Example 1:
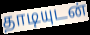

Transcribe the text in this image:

தாடியுடன்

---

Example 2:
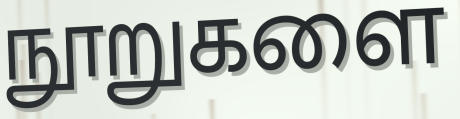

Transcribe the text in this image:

நூறுகளை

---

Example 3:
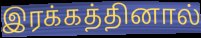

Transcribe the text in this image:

இரக்கத்தினால்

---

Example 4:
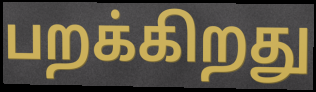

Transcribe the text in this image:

பறக்கிறது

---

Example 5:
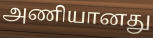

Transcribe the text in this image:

அணியானது